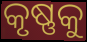
କୃଷ୍ଣକୁ